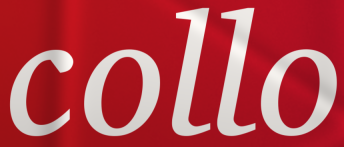
collo